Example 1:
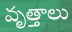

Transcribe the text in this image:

వృత్తాలు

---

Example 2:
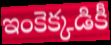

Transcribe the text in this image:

ఇంకెక్కడికీ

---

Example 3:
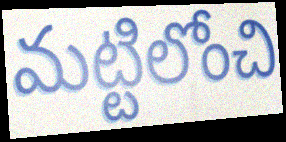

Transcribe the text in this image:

మట్టిలోంచి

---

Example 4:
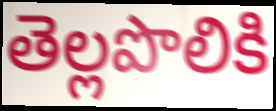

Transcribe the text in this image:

తెల్లపొలికి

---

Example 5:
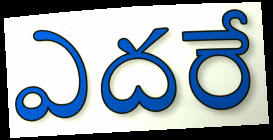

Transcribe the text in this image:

ఎదరే